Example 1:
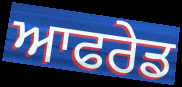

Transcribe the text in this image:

ਆਫਰੇਡ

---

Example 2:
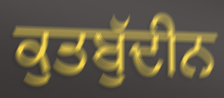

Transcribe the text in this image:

ਕੁਤਬੁੱਦੀਨ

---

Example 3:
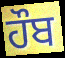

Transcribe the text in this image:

ਹੌਬ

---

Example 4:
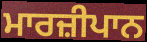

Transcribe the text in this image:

ਮਾਰਜ਼ੀਪਾਨ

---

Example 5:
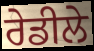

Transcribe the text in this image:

ਰੇਡੀਲੇ